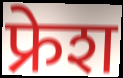
फ्रेश